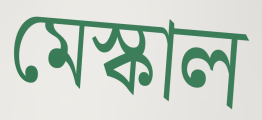
মেস্কাল